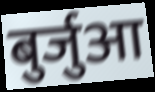
बुर्जुआ